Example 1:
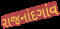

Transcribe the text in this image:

રાજનાંદગાંવ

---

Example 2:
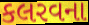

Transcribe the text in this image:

કલરવના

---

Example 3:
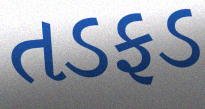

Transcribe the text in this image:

તડફડ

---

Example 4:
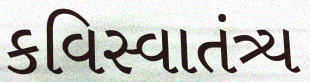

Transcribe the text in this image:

કવિસ્વાતંત્ર્ય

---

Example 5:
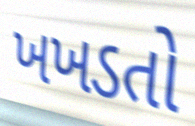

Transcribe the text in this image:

ખખડતો